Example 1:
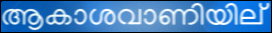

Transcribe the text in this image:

ആകാശവാണിയില്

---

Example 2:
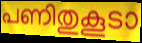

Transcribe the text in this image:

പണിതുകൂടാ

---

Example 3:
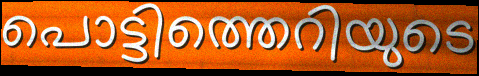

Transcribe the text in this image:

പൊട്ടിത്തെറിയുടെ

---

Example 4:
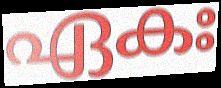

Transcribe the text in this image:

ഏകഃ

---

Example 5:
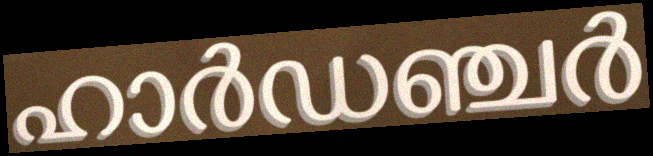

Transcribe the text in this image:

ഹാർഡഞ്ചർ